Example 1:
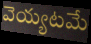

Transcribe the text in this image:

వెయ్యటమే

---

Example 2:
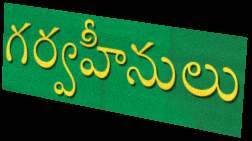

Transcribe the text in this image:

గర్వహీనులు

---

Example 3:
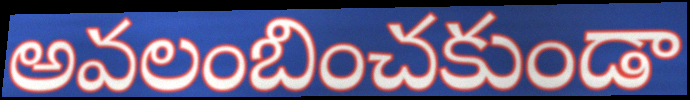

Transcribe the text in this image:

అవలంబించకుండా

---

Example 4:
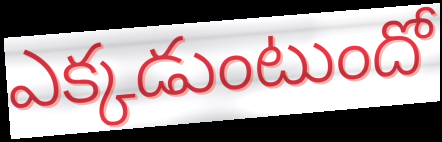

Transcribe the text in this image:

ఎక్కడుంటుందో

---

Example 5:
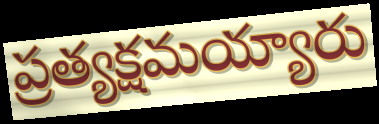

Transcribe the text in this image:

ప్రత్యక్షమయ్యారు